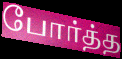
போர்த்த